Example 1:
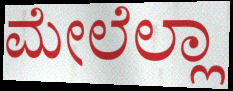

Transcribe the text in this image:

ಮೇಲೆಲ್ಲಾ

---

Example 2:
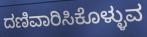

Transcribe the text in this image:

ದಣಿವಾರಿಸಿಕೊಳ್ಳುವ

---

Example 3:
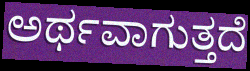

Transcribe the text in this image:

ಅರ್ಥವಾಗುತ್ತದೆ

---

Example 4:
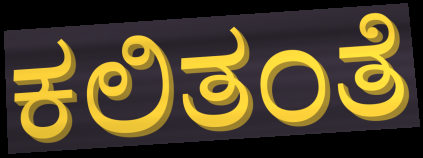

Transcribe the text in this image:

ಕಲಿತಂತೆ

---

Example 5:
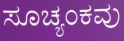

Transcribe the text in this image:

ಸೂಚ್ಯಂಕವು